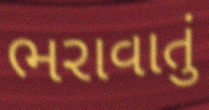
ભરાવાતું